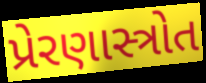
પ્રેરણાસ્ત્રોત